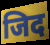
जिद